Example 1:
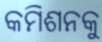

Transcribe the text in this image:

କମିଶନକୁ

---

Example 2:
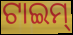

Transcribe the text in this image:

ଟାଇମ୍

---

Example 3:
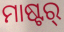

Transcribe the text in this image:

ମାଷ୍ଟର୍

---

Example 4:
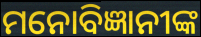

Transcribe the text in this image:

ମନୋବିଜ୍ଞାନୀଙ୍କ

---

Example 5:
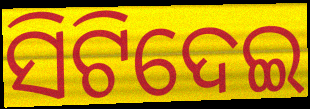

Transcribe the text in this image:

ସିଟିଦେଇ